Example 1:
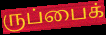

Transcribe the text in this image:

ருப்பைக்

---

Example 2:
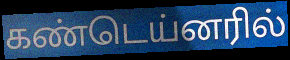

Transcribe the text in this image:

கண்டெய்னரில்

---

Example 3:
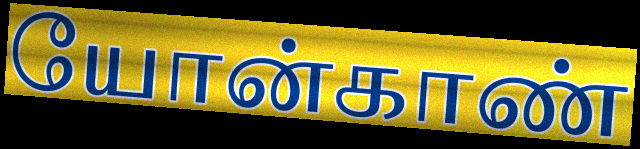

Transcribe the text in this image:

யோன்காண்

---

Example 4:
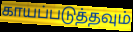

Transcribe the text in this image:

காயப்படுத்தவும்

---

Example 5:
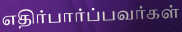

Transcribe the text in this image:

எதிர்பார்ப்பவர்கள்